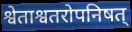
श्वेताश्वतरोपनिषत्